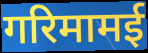
गरिमामई